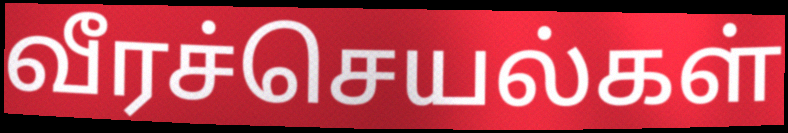
வீரச்செயல்கள்